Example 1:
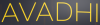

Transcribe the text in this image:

AVADHI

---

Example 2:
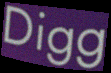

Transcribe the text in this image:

Digg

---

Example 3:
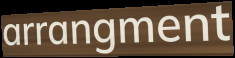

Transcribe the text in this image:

arrangment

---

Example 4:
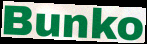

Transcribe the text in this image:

Bunko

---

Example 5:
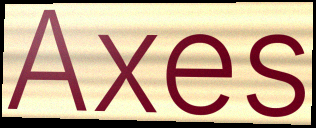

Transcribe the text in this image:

Axes